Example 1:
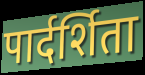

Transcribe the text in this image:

पार्दर्शिता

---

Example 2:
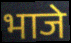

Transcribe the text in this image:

भाजे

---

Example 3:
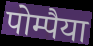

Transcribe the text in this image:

पोम्पैया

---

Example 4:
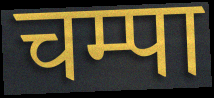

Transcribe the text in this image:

चम्पा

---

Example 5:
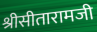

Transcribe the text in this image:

श्रीसीतारामजी